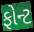
ફોન્ટ